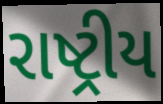
રાષ્ટ્રીય